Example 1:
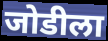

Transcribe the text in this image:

जोडीला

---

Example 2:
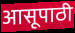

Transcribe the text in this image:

आसूपाठी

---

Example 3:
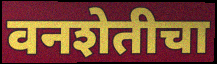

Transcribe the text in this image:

वनशेतीचा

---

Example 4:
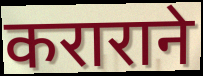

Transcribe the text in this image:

कराराने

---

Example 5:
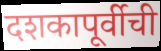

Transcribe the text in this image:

दशकापूर्वीची